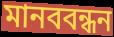
মানববন্ধন